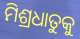
ମିଶ୍ରଧାତୁକୁ